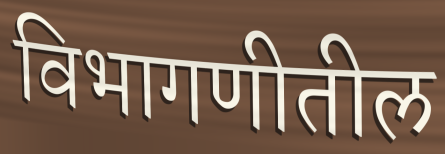
विभागणीतील